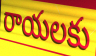
రాయలకు